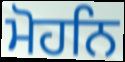
ਮੋਹਨਿ